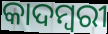
କାଦମ୍ବରୀ